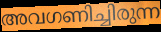
അവഗണിച്ചിരുന്ന